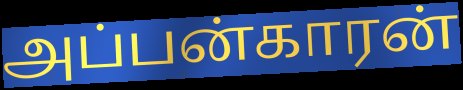
அப்பன்காரன்